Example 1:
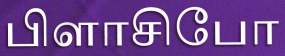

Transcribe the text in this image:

பிளாசிபோ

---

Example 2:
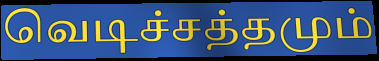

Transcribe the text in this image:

வெடிச்சத்தமும்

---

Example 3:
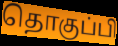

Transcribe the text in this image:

தொகுப்பி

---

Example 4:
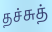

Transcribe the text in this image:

தச்சுத்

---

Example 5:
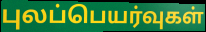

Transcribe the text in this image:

புலப்பெயர்வுகள்